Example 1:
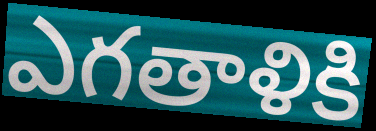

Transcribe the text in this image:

ఎగతాళికి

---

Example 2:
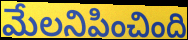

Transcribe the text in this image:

మేలనిపించింది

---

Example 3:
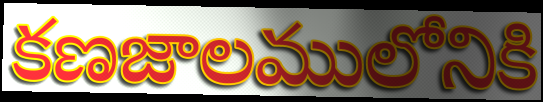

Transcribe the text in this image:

కణజాలములోనికి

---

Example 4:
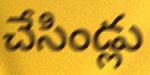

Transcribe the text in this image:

చేసిండ్లు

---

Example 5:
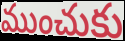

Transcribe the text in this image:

ముంచుకు